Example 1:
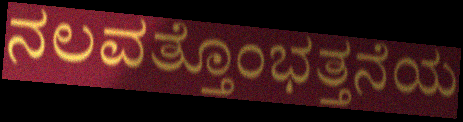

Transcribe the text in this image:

ನಲವತ್ತೊಂಭತ್ತನೆಯ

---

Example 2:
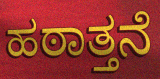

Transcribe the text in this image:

ಹಠಾತ್ತನೆ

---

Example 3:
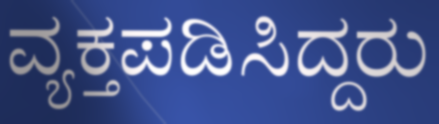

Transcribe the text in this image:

ವ್ಯಕ್ತಪಡಿಸಿದ್ದರು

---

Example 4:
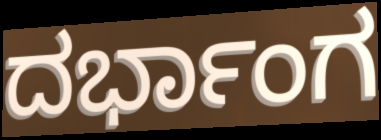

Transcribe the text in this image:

ದರ್ಭಾಂಗ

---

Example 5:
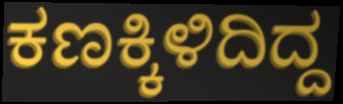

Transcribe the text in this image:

ಕಣಕ್ಕಿಳಿದಿದ್ದ